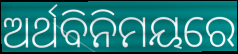
ଅର୍ଥବିନିମୟରେ